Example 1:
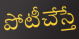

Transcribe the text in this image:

పోటీచేస్తే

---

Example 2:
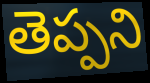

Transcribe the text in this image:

తెప్పని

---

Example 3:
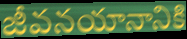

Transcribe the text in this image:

జీవనయానానికి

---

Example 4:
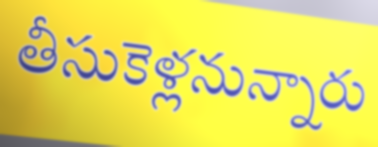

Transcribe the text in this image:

తీసుకెళ్లనున్నారు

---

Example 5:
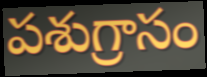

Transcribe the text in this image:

పశుగ్రాసం